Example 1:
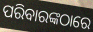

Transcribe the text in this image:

ପରିବାରଙ୍କଠାରେ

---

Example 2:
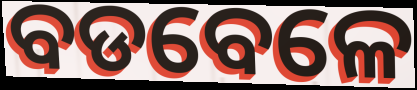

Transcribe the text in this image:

ବଡବେଳେ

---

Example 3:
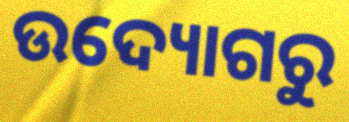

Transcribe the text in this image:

ଉଦ୍ୟୋଗରୁ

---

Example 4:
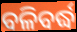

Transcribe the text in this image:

ବଳିବର୍ଦ୍ଧ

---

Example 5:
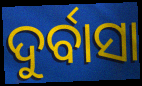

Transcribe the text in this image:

ଦୁର୍ବାସା